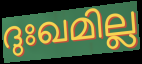
ദുഃഖമില്ല